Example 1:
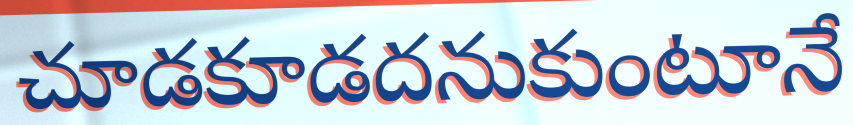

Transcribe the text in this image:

చూడకూడదనుకుంటూనే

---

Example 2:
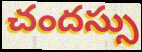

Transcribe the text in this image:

చందస్సు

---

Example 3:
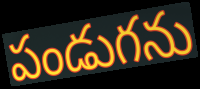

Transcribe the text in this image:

పండుగను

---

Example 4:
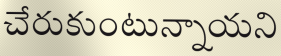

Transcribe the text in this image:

చేరుకుంటున్నాయని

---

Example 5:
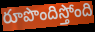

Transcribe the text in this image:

రూపొందిస్తోంది